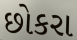
છોકરા